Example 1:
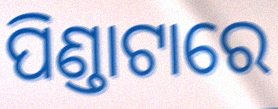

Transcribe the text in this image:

ପିଣ୍ଡାଟାରେ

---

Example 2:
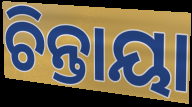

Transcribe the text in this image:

ଚିନ୍ତାୟା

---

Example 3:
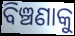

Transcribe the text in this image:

ବିଞ୍ଚଣାକୁ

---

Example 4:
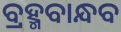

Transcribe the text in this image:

ବ୍ରହ୍ମବାନ୍ଧବ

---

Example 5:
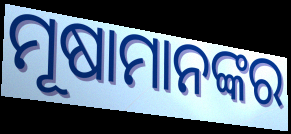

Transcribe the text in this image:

ମୂଷାମାନଙ୍କର